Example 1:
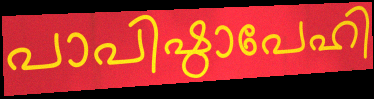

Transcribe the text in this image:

പാപിഷ്ഠാപേഹി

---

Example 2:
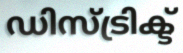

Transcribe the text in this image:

ഡിസ്ട്രിക്ട്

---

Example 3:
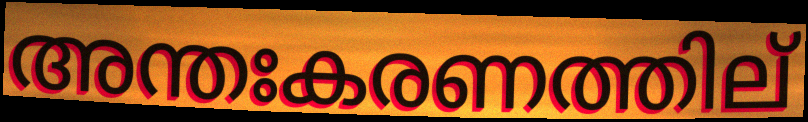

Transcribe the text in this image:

അന്തഃകരണത്തില്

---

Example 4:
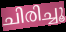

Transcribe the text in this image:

ചിരിച്ചൂ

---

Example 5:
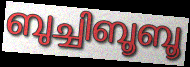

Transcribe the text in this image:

ബുച്ചിബൂബൂ